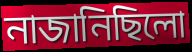
নাজানিছিলো